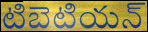
టిబెటియన్